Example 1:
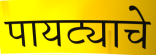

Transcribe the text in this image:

पायट्याचे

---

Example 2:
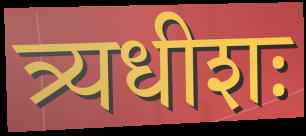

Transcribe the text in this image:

त्र्यधीशः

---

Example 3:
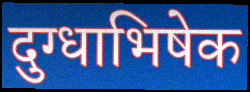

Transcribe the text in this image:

दुग्धाभिषेक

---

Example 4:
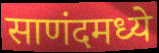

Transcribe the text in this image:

साणंदमध्ये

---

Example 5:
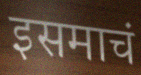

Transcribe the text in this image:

इसमाचं